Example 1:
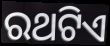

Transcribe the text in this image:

ରଥଟିଏ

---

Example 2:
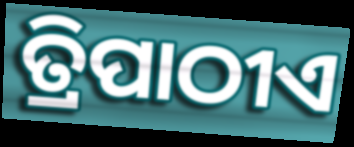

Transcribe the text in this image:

ତ୍ରିପାଠୀଏ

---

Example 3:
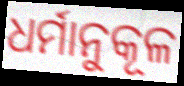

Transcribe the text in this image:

ଧର୍ମାନୁକୂଳ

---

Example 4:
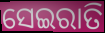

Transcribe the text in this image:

ସେଇରାତି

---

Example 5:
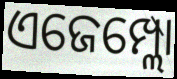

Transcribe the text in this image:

ଏଜେମ୍ପ୍ଲୋ